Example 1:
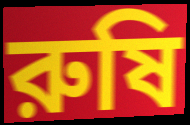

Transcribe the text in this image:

রুষি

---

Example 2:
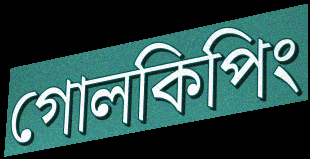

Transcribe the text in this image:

গোলকিপিং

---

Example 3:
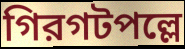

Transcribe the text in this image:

গিরগটপল্লে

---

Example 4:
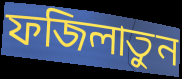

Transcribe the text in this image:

ফজিলাতুন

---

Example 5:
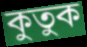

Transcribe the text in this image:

কুতুক